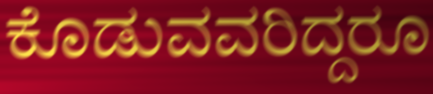
ಕೊಡುವವರಿದ್ದರೂ